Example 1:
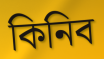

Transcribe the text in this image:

কিনিব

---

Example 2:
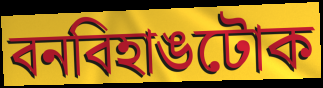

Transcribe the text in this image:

বনবিহাঙটোক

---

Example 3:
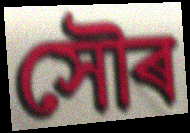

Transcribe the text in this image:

সৌৰ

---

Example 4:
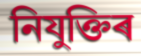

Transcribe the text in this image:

নিযুক্তিৰ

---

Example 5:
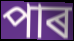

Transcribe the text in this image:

পাৰ